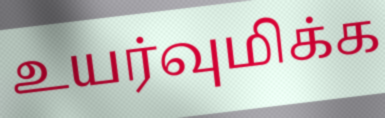
உயர்வுமிக்க